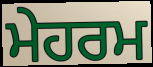
ਮੇਹਰਮ